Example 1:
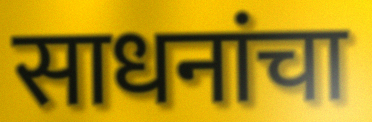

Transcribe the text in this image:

साधनांचा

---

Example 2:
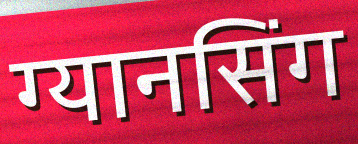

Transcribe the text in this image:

ग्यानसिंग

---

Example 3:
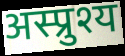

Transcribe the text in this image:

अस्प्रुश्य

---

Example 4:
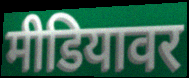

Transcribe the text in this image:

मीडियावर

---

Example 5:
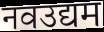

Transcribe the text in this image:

नवउद्यम